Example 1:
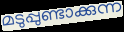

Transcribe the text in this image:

മടുപ്പുണ്ടാക്കുന്ന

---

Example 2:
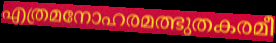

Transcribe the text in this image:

എത്രമനോഹരമത്ഭുതകരമീ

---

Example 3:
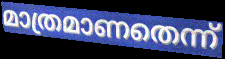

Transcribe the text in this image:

മാത്രമാണതെന്ന്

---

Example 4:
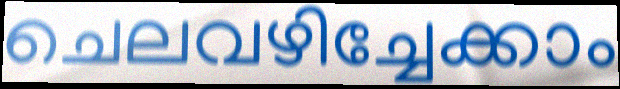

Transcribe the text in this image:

ചെലവഴിച്ചേക്കാം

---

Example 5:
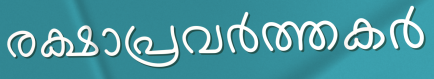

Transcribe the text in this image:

രക്ഷാപ്രവർത്തകർ